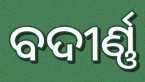
ବଦୀର୍ଣ୍ଣ